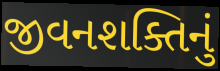
જીવનશક્તિનું